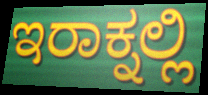
ಇರಾಕ್ನಲ್ಲಿ